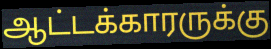
ஆட்டக்காரருக்கு